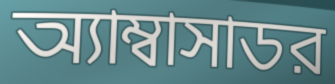
অ্যাম্বাসাডর